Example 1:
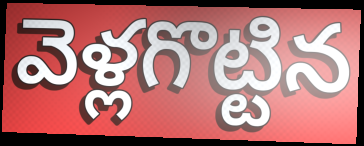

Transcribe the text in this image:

వెళ్లగొట్టిన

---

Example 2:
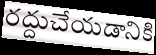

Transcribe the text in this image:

రద్దుచేయడానికి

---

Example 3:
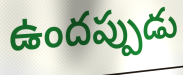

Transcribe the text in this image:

ఉందప్పుడు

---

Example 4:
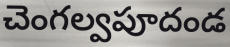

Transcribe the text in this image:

చెంగల్వపూదండ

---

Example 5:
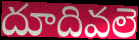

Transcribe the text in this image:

దూదివలె